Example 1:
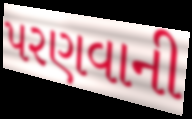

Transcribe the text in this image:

પરણવાની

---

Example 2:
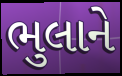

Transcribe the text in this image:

ભુલાને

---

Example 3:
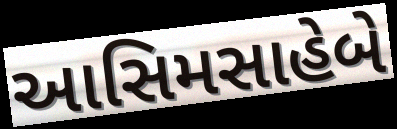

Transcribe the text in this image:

આસિમસાહેબે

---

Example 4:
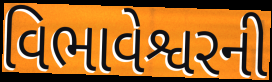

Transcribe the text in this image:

વિભાવેશ્વરની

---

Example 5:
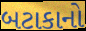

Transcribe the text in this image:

બટાકાનો